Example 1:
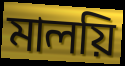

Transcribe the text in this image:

মালয়ি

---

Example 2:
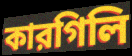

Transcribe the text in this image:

কারগিলি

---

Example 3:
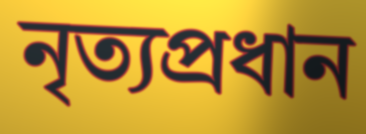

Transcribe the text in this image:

নৃত্যপ্রধান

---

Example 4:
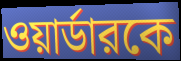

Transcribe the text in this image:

ওয়ার্ডারকে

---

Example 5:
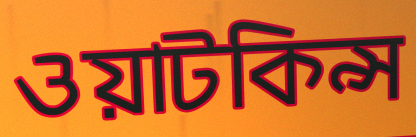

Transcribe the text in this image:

ওয়াটকিন্স